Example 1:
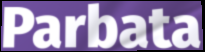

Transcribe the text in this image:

Parbata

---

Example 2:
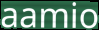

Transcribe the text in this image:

aamio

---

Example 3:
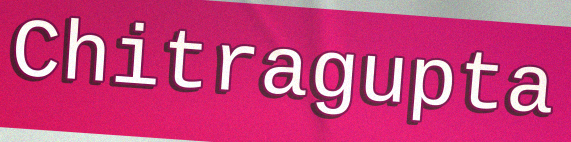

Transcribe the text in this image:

Chitragupta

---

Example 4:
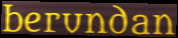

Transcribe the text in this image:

berundan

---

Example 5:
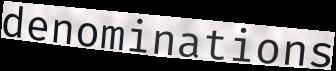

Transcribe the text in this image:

denominations